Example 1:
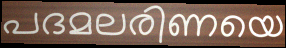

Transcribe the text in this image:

പദമലരിണയെ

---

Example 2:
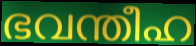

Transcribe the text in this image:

ഭവന്തീഹ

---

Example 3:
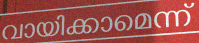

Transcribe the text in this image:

വായിക്കാമെന്ന്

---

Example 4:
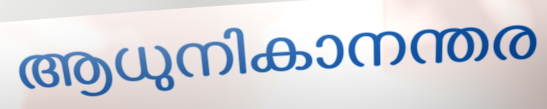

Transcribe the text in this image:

ആധുനികാനന്തര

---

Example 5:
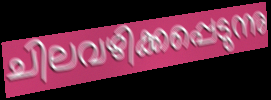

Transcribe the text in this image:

ചിലവഴിക്കപ്പെടുന്നു